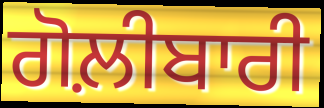
ਗੋਲ਼ੀਬਾਰੀ